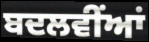
ਬਦਲਵੀਂਆਂ